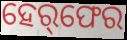
ହେର୍‌ଫେର